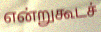
என்றுகூடச்